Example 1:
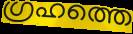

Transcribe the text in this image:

ഗ്രഹത്തെ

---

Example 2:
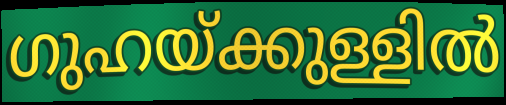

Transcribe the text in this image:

ഗുഹയ്ക്കുള്ളിൽ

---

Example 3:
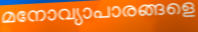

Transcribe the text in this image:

മനോവ്യാപാരങ്ങളെ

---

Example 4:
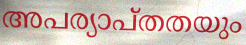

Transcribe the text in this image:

അപര്യാപ്തതയും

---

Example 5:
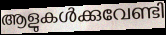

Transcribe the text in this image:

ആളുകൾക്കുവേണ്ടി